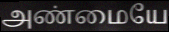
அண்மையே